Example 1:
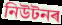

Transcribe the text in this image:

নিউটনৰ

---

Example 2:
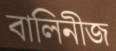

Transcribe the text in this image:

বালিনীজ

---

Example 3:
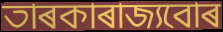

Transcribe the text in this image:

তাৰকাৰাজ্যবোৰ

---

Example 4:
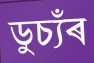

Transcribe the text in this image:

ডুচ্যঁৰ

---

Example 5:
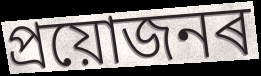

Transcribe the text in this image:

প্ৰয়োজনৰ